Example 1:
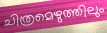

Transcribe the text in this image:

ചിത്രമെഴുത്തിലും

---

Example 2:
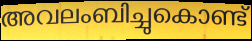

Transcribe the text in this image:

അവലംബിച്ചുകൊണ്ട്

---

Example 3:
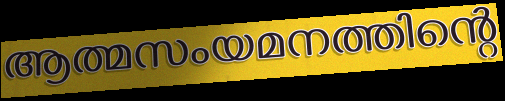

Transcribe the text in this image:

ആത്മസംയമനത്തിന്റെ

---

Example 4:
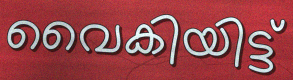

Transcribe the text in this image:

വൈകിയിട്ട്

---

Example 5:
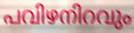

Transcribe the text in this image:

പവിഴനിറവും